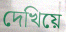
দেখিয়ে